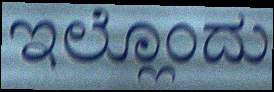
ಇಲ್ಲೊಂದು